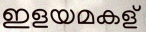
ഇളയമകള്